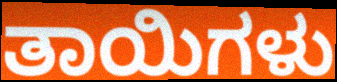
ತಾಯಿಗಳು